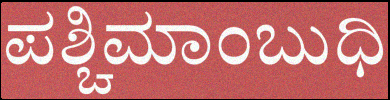
ಪಶ್ಚಿಮಾಂಬುಧಿ